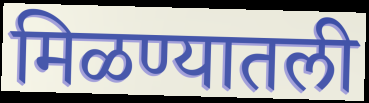
मिळण्यातली